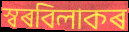
স্বৰবিলাকৰ